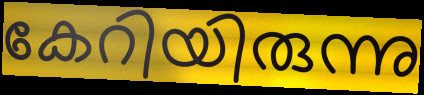
കേറിയിരുന്നു